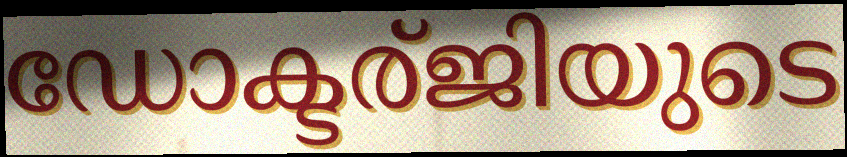
ഡോക്ടര്ജിയുടെ